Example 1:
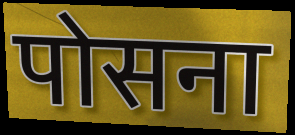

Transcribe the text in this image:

पोसना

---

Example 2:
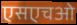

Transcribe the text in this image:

एसएचओ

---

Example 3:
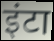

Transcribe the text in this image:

इंटा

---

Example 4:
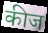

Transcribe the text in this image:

कीज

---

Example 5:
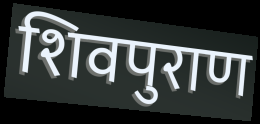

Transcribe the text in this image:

शिवपुराण